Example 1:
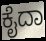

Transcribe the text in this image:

ಕೈದಾ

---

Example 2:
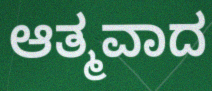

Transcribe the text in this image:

ಆತ್ಮವಾದ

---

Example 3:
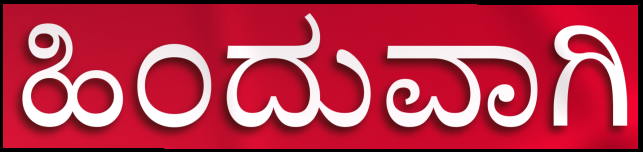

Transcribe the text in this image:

ಹಿಂದುವಾಗಿ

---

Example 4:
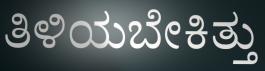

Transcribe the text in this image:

ತಿಳಿಯಬೇಕಿತ್ತು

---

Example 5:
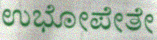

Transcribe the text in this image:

ಉಭೋಪೇತೇ